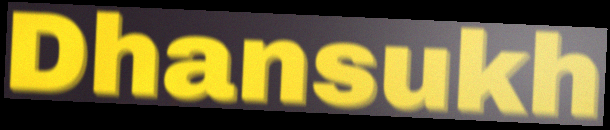
Dhansukh